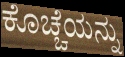
ಕೊಚ್ಚೆಯನ್ನು